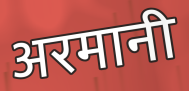
अरमानी